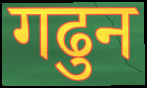
गढुन